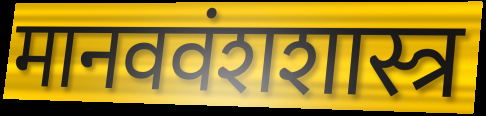
मानववंशशास्त्र